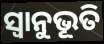
ସ୍ଵାନୁଭୂତି